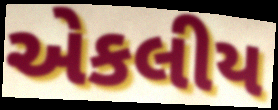
એકલીય